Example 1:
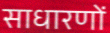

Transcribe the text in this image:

साधारणों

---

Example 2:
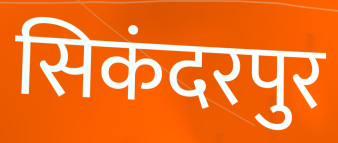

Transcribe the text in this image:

सिकंदरपुर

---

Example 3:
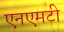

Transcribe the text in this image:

एनएमटी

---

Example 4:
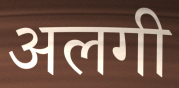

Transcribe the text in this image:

अलगी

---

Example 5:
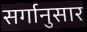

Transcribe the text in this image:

सर्गानुसार